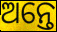
ଅନ୍ତେ